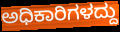
ಅಧಿಕಾರಿಗಳದ್ದು